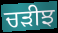
ਚੜੀਝ